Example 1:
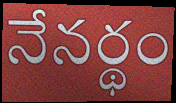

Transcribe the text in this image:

నేనర్థం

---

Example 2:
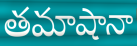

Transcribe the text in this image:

తమాషానా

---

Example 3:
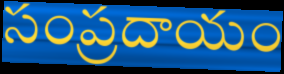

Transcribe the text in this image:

సంప్రదాయం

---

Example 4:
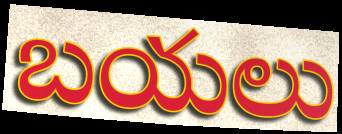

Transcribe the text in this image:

బయలు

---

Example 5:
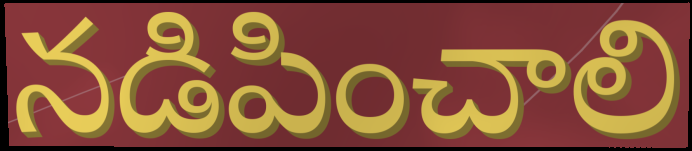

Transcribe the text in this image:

నడిపించాలి